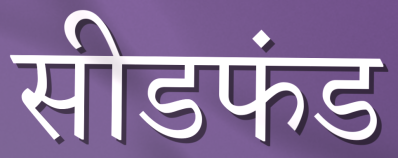
सीडफंड